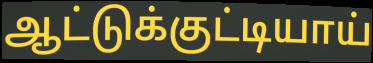
ஆட்டுக்குட்டியாய்